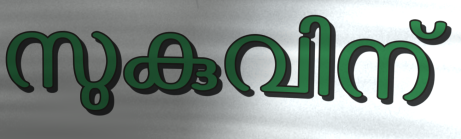
സുകുവിന്